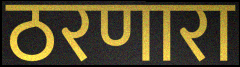
ठरणारा